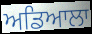
ਅਡਿਆਲਾ